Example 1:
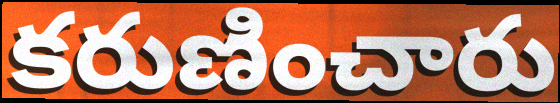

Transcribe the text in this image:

కరుణించారు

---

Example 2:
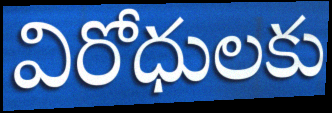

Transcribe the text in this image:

విరోధులకు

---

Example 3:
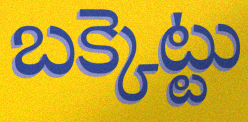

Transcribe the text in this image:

బక్కెట్టు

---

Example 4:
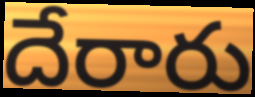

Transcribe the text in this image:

దేరారు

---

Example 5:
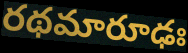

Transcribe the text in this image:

రథమారూఢః